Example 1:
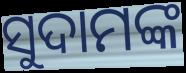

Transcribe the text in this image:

ସୁଦାମଙ୍କ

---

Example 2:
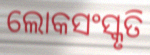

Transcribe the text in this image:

ଲୋକସଂସ୍କୃତି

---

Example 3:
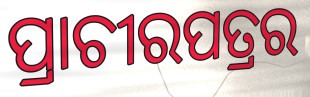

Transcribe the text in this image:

ପ୍ରାଚୀରପତ୍ରର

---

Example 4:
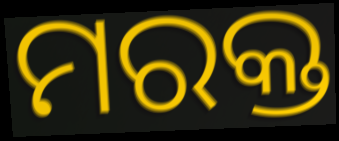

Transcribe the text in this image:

ମରକ୍ତ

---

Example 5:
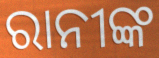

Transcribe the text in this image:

ରାନୀଙ୍କ